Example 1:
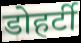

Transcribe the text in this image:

डोहर्टी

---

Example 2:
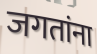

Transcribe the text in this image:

जगतांना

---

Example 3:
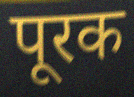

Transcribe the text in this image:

पूरक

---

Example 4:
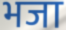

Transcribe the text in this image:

भजा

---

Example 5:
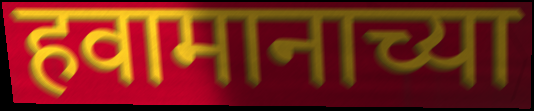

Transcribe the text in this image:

हवामानाच्या